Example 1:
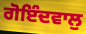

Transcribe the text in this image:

ਗੋਇੰਦਵਾਲੁ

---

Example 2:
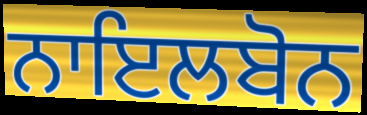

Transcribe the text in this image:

ਨਾਇਲਬੋਨ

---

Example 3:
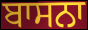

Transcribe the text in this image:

ਬਾਸਨਾ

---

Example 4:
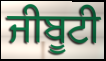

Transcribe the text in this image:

ਜੀਬੂਟੀ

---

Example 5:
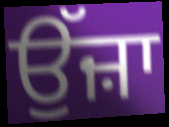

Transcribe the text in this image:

ਉੱਜ਼ਾ